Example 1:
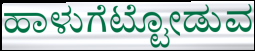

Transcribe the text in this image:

ಹಾಳುಗೆಟ್ಟೋಡುವ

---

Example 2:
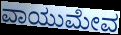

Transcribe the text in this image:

ವಾಯುಮೇವ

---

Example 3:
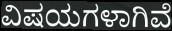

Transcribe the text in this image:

ವಿಷಯಗಳಾಗಿವೆ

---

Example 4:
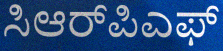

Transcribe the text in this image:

ಸಿಆರ್‌ಪಿಎಫ್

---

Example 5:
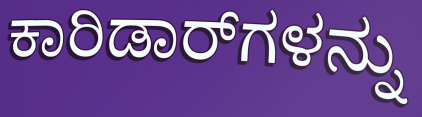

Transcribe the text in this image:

ಕಾರಿಡಾರ್‌ಗಳನ್ನು